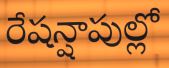
రేషన్షాపుల్లో